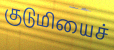
குடுமியைச்